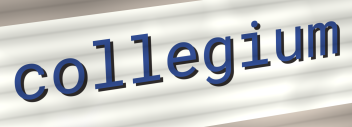
collegium